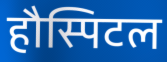
हौस्पिटल